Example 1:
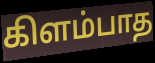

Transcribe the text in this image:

கிளம்பாத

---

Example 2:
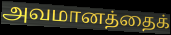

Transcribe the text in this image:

அவமானத்தைக்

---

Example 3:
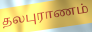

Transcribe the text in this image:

தலபுராணம்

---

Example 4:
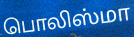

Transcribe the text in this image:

பொலிஸ்மா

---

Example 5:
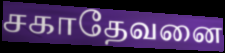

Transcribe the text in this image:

சகாதேவனை